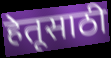
हेतूसाठी